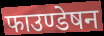
फाउण्डेषन